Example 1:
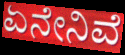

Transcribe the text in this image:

ಏನೇನಿವೆ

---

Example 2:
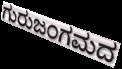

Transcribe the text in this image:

ಗುರುಜಂಗಮದ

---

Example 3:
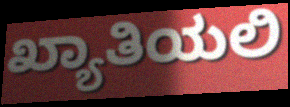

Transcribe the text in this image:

ಖ್ಯಾತಿಯಲಿ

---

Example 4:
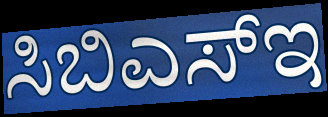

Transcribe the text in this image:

ಸಿಬಿಎಸ್ಇ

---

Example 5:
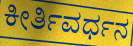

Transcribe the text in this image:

ಕೀರ್ತಿವರ್ಧನ